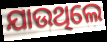
ଯାଉଥିଲେ